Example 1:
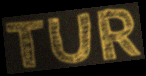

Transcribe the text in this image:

TUR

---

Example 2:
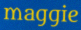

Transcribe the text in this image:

maggie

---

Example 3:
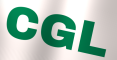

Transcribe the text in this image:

CGL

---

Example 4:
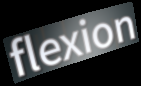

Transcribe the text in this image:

flexion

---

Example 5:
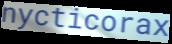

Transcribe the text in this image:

nycticorax